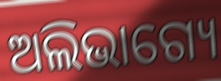
ଅଲିଭାଗ୍ୟେ